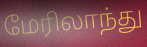
மேரிலாந்து